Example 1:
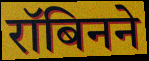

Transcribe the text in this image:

रॉबिनने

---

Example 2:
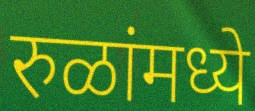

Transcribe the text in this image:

रुळांमध्ये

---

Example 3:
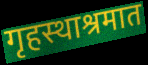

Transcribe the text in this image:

गृहस्थाश्रमात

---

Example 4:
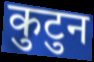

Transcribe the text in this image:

कुटुन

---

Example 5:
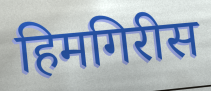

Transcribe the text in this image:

हिमगिरीस